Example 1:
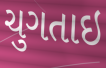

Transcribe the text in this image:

ચુગતાઇ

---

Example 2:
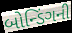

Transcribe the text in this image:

બોન્ડિંગની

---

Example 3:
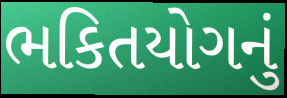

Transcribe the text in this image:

ભકિતયોગનું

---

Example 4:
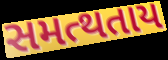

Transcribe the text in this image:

સમત્થતાય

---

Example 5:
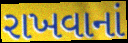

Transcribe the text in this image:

રાખવાનાં